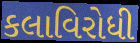
કલાવિરોધી